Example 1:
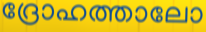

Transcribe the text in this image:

ദ്രോഹത്താലോ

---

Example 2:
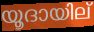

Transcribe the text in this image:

യൂദായില്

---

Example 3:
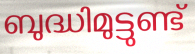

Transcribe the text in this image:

ബുദ്ധിമുട്ടുണ്ട്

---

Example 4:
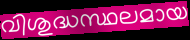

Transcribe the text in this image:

വിശുദ്ധസ്ഥലമായ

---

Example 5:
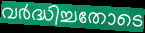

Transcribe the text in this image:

വർദ്ധിച്ചതോടെ